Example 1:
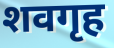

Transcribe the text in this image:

शवगृह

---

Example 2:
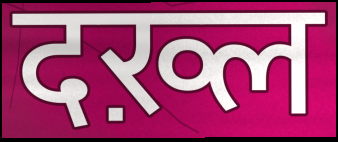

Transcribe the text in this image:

दख़्ल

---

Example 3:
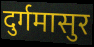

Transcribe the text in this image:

दुर्गमासुर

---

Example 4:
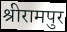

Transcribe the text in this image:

श्रीरामपुर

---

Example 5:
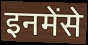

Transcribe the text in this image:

इनमेंसे